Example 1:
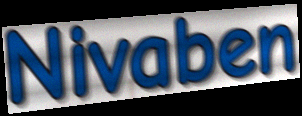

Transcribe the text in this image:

Nivaben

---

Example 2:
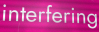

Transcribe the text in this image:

interfering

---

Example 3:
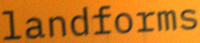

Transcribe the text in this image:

landforms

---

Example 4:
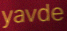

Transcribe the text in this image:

yavde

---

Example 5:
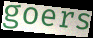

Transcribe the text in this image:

goers